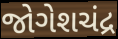
જોગેશચંદ્ર